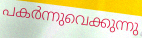
പകർന്നുവെക്കുന്നു